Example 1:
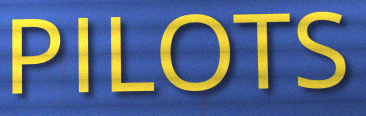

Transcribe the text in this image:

PILOTS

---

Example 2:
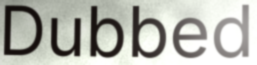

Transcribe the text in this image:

Dubbed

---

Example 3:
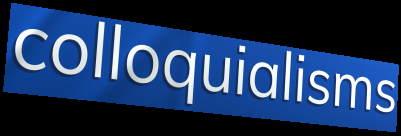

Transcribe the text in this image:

colloquialisms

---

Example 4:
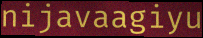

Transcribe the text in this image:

nijavaagiyu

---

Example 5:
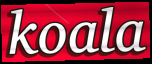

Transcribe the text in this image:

koala